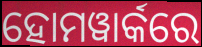
ହୋମୱାର୍କରେ